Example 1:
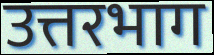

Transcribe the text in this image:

उत्तरभाग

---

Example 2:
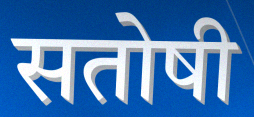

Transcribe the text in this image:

सतोषी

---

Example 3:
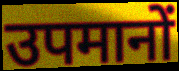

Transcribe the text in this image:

उपमानों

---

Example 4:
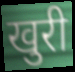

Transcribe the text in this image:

खुरी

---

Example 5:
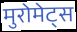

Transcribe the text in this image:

मुरोमेट्स